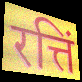
रत्तिं